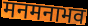
मनमनाभव